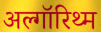
अल्गॉरिथ्म